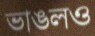
ভাঙলও